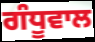
ਗੰਧੂਵਾਲ